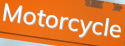
Motorcycle